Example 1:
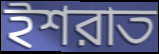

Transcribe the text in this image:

ইশরাত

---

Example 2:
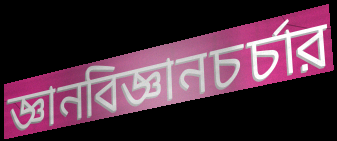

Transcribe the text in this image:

জ্ঞানবিজ্ঞানচর্চার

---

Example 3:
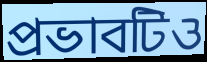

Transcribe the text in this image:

প্রভাবটিও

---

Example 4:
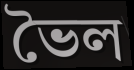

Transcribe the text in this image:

ভৈল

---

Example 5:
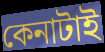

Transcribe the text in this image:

কেনাটাই